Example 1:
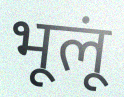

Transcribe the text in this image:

भूलूं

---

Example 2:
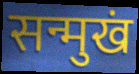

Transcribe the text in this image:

सन्मुखं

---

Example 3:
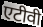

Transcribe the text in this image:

एटीवी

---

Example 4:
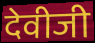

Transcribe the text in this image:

देवीजी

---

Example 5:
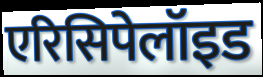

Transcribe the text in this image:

एरिसिपेलॉइड